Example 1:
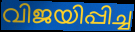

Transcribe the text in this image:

വിജയിപ്പിച്ച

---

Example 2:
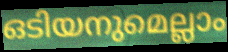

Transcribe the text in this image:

ഒടിയനുമെല്ലാം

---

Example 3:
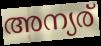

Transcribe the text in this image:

അന്യര്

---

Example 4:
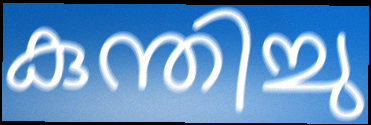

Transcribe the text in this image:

കുന്തിച്ചു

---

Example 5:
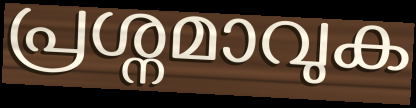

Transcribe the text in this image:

പ്രശ്നമാവുക